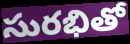
సురభితో